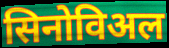
सिनोविअल